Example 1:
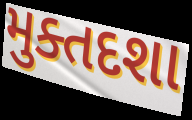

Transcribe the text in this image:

મુક્તદશા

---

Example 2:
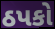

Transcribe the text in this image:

ઠપકો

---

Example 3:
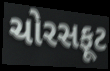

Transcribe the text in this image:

ચોરસફૂટ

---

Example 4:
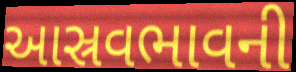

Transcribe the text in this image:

આસ્રવભાવની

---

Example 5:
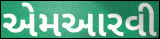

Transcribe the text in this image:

એમઆરવી